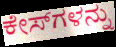
ಕೇಸ್‌ಗಳನ್ನು